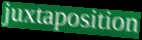
juxtaposition